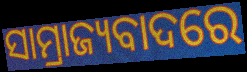
ସାମ୍ରାଜ୍ୟବାଦରେ